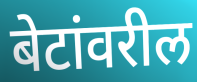
बेटांवरील